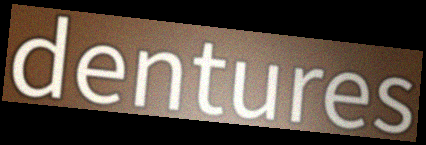
dentures